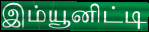
இம்யூனிட்டி